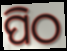
ପିଠ